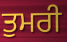
ਤੁਮਰੀ